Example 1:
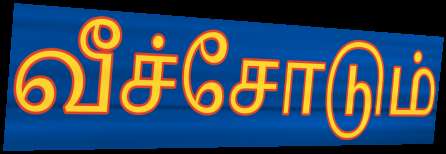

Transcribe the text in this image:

வீச்சோடும்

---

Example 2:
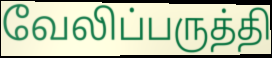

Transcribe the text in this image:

வேலிப்பருத்தி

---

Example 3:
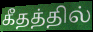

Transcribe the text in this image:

கீதத்தில்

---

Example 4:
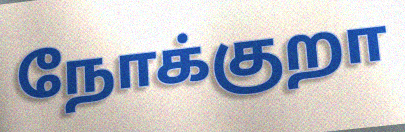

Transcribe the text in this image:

நோக்குறா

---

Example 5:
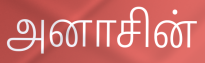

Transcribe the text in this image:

அனாசின்